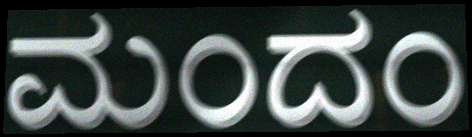
ಮಂದಂ